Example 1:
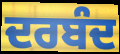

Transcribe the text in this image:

ਦਰਬੰਦ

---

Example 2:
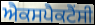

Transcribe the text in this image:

ਐਕਸਪੈਕਟੈਂਸੀ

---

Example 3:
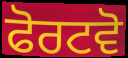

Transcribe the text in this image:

ਫੋਰਟਵੋ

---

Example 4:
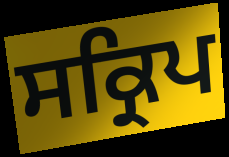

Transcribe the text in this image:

ਸਕ੍ਰਿਪ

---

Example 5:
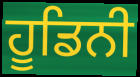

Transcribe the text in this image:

ਹੂਡਿਨੀ